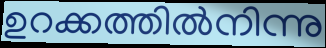
ഉറക്കത്തിൽനിന്നു